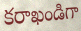
కరాఖండిగా